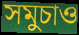
সমুচাও